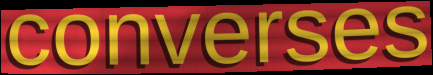
converses